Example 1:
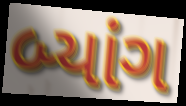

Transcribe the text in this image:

બ્યાંગ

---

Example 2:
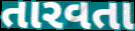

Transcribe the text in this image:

તારવતા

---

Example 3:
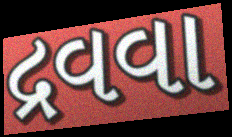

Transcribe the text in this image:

દ્રવવા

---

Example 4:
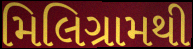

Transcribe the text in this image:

મિલિગ્રામથી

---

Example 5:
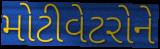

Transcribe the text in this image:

મોટીવેટરોને